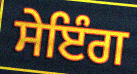
ਸੇਇੰਗ